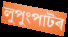
লুপুংপাটৰ